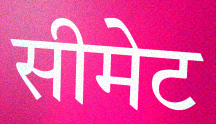
सीमेट